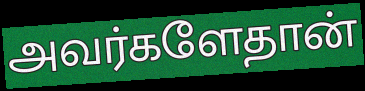
அவர்களேதான்